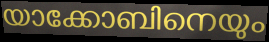
യാക്കോബിനെയും